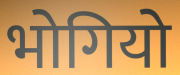
भोगियो